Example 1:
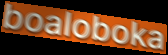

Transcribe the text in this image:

boaloboka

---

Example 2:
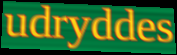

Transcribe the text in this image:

udryddes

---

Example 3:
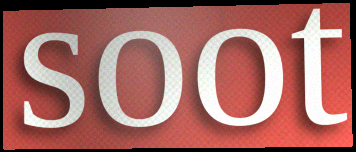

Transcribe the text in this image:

soot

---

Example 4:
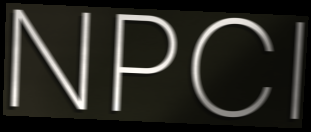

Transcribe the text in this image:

NPCI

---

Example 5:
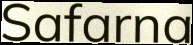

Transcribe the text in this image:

Safarna